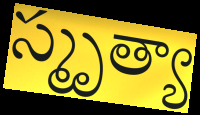
స్మృత్యా